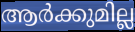
ആർക്കുമില്ല